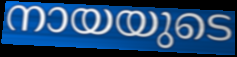
നായയുടെ